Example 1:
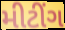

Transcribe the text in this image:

મીટીંગ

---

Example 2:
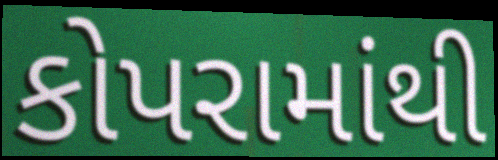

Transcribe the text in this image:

કોપરામાંથી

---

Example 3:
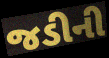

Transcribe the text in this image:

જડીની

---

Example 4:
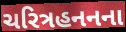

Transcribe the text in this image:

ચરિત્રહનનના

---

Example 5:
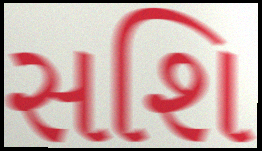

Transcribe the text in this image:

સશિ